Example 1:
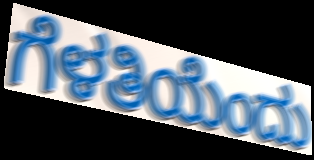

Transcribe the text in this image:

ಗೆಳತಿಯೆಂದು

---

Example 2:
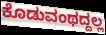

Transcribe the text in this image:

ಕೊಡುವಂಥದ್ದಲ್ಲ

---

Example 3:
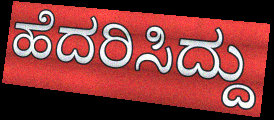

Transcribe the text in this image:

ಹೆದರಿಸಿದ್ದು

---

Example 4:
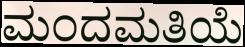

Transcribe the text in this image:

ಮಂದಮತಿಯೆ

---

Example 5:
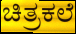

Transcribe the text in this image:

ಚಿತ್ರಕಲೆ